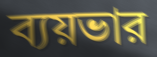
ব্যয়ভার